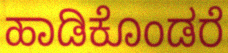
ಹಾಡಿಕೊಂಡರೆ